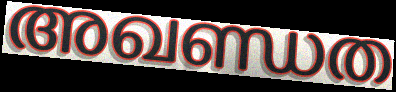
അഖണ്ഡത